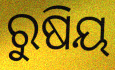
ରୁଷିୟ